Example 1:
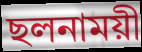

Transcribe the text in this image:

ছলনাময়ী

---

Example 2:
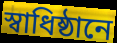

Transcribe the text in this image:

স্বাধিষ্ঠানে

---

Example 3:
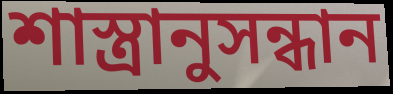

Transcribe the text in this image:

শাস্ত্রানুসন্ধান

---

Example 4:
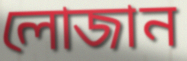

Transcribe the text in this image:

লোজান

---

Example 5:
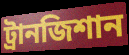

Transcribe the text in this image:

ট্রানজিশান